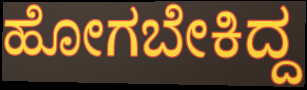
ಹೋಗಬೇಕಿದ್ದ